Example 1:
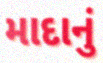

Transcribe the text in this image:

માદાનું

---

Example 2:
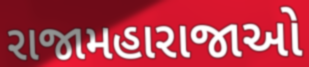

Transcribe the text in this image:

રાજામહારાજાઓ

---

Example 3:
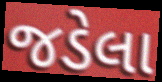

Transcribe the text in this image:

જડેલા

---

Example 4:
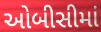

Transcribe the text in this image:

ઓબીસીમાં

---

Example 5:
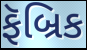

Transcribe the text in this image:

ફૅબ્રિક